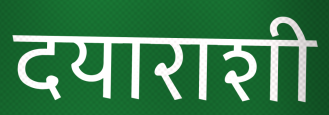
दयाराशी